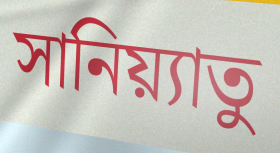
সানিয়্যাতু